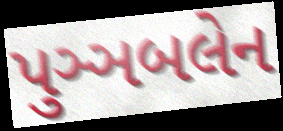
પુઞ્ઞબલેન